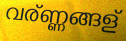
വര്ണ്ണങ്ങള്